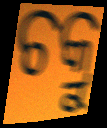
ଚକ୍ରୁ